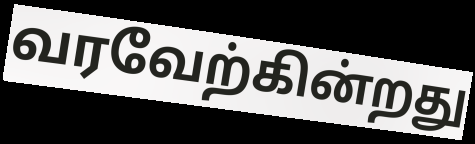
வரவேற்கின்றது